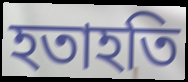
হতাহতি